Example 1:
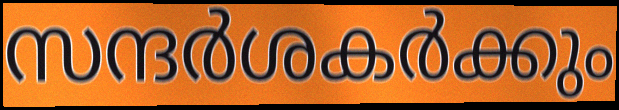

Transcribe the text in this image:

സന്ദർശകർക്കും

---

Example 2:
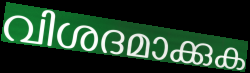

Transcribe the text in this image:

വിശദമാക്കുക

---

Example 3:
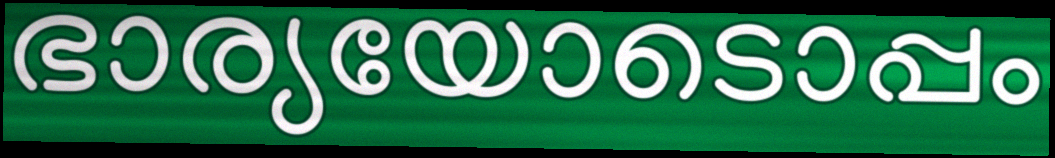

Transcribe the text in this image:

ഭാര്യയോടൊപ്പം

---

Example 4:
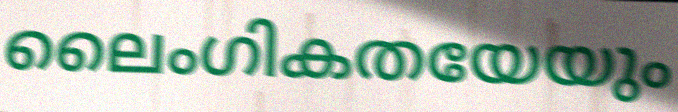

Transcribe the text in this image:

ലൈംഗികതയേയും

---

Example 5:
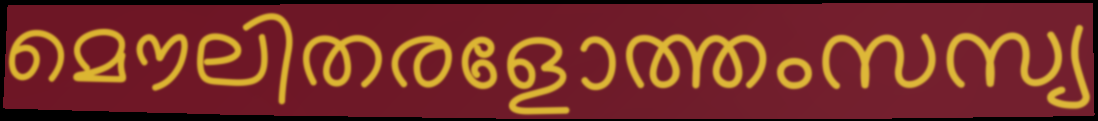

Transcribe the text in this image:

മൌലിതരളോത്തംസസ്യ